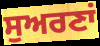
ਸੁਅਰਣਾਂ